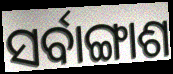
ସର୍ବାଙ୍ଗାଶ